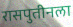
रासपुतीनला